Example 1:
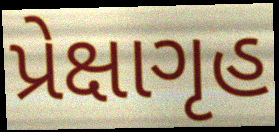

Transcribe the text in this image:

પ્રેક્ષાગૃહ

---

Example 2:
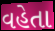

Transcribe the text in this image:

વહેતા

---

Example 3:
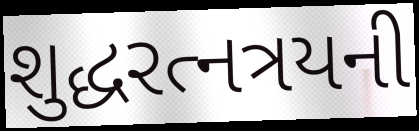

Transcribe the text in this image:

શુદ્ધરત્નત્રયની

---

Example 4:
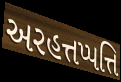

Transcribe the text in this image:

અરહત્તપ્પત્તિ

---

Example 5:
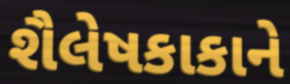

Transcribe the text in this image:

શૈલેષકાકાને